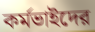
কর্মভাইদের